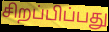
சிறப்பிப்பது